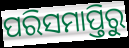
ପରିସମାପ୍ତିରୁ